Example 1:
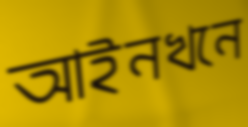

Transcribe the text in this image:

আইনখনে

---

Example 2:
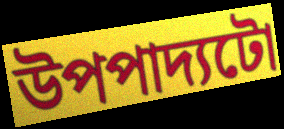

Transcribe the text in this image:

উপপাদ্যটো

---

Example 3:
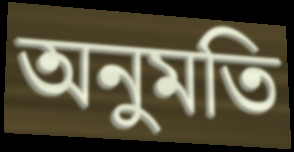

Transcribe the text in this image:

অনুমতি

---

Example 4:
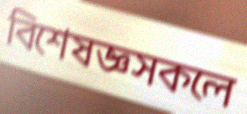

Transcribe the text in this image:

বিশেষজ্ঞসকলে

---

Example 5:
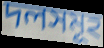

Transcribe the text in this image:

দলসমূহ